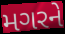
મગરને